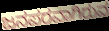
ಜನಪರವಾಗಿರುವ